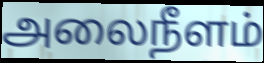
அலைநீளம்